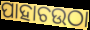
ପାହାଚଉଠା